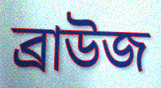
ব্রাউজ